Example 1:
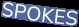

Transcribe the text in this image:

SPOKES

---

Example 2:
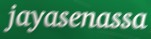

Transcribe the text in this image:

jayasenassa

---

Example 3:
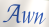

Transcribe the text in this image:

Awn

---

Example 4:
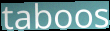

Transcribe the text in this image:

taboos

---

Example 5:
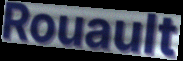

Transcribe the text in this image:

Rouault